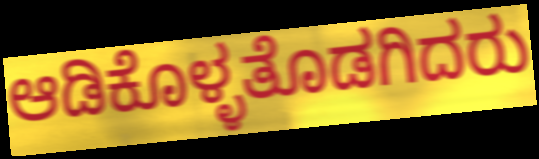
ಆಡಿಕೊಳ್ಳತೊಡಗಿದರು